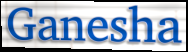
Ganesha